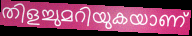
തിളച്ചുമറിയുകയാണ്